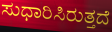
ಸುಧಾರಿಸಿರುತ್ತದೆ